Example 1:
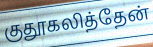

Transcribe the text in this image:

குதூகலித்தேன்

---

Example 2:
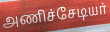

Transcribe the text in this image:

அணிச்சேடியர்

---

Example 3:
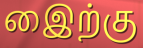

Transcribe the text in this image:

இைற்கு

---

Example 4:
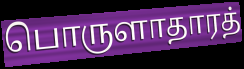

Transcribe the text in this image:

பொருளாதாரத்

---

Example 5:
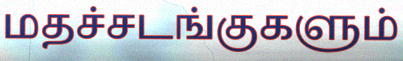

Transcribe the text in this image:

மதச்சடங்குகளும்